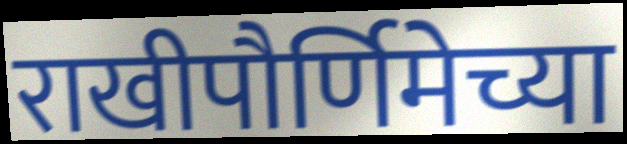
राखीपौर्णिमेच्या